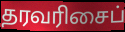
தரவரிசைப்